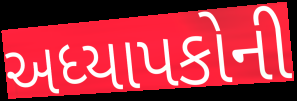
અધ્યાપકોની